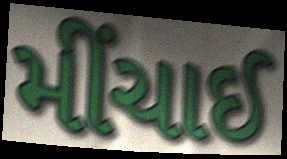
મીંચાઈ